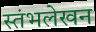
स्तंभलेखन